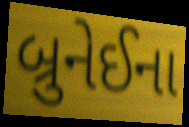
બ્રુનેઈના